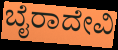
ಬೈರಾದೇವಿ